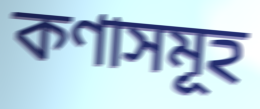
কণাসমূহ